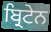
ਬ੍ਰਿਟੇਨ